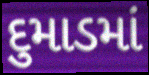
દુમાડમાં